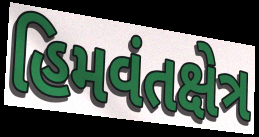
હિમવંતક્ષેત્ર